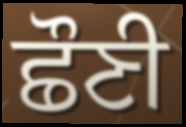
ਛੌਣੀ